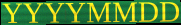
YYYYMMDD